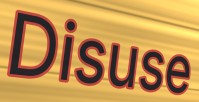
Disuse